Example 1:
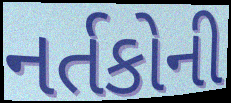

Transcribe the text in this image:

નર્તકોની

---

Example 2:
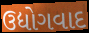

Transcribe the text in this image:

ઉદ્યોગવાદ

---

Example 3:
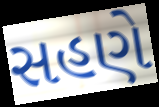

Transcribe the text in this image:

સહણે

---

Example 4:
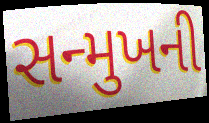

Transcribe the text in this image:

સન્મુખની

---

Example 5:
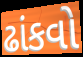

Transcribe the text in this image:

ઢાંકવો